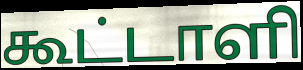
கூட்டாளி